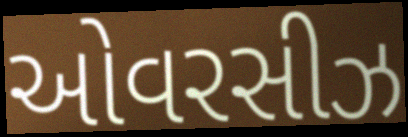
ઓવરસીઝ